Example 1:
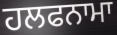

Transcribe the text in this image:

ਹਲਫਨਾਮਾ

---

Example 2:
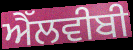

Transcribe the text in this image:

ਐੱਲਵੀਬੀ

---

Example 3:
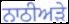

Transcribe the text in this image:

ਨਾਠੀਅੜੇ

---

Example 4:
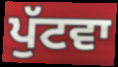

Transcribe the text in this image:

ਪੁੱਟਵਾ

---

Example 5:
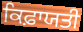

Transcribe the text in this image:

ਕਿਫ਼ਾਯਤੀ